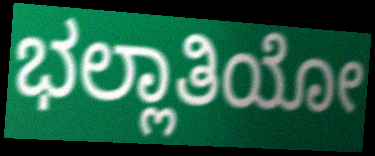
ಭಲ್ಲಾತಿಯೋ